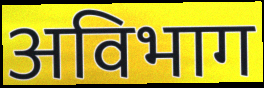
अविभाग